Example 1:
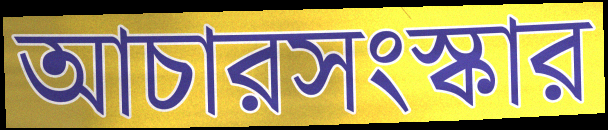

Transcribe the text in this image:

আচারসংস্কার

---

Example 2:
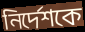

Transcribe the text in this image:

নির্দেশকে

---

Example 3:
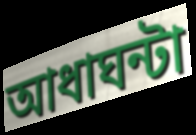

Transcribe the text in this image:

আধাঘন্টা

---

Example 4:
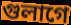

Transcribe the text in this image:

গুলাগে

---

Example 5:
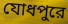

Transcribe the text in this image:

যোধপুরে